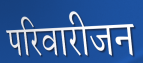
परिवारीजन